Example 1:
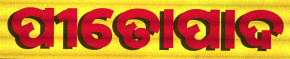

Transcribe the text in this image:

ପୀତୋପାଦ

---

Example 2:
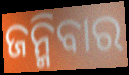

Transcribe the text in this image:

ଜନ୍ମିବାର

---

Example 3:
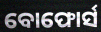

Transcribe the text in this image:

ବୋଫୋର୍ସ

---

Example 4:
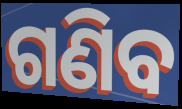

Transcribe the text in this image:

ଗଣିବ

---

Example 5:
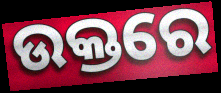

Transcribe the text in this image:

ଉକ୍ତରେ